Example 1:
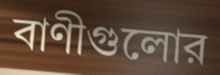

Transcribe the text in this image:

বাণীগুলোর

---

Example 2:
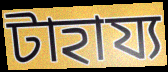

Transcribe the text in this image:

টাহায্য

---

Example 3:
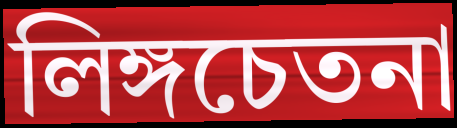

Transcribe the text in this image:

লিঙ্গচেতনা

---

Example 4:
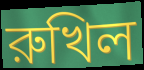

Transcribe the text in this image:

রুখিল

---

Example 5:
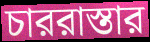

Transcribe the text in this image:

চাররাস্তার